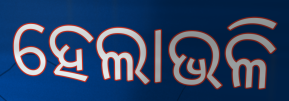
ହେଲାଭଳି